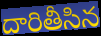
దారితీసిన